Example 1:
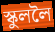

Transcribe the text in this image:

স্কুললৈ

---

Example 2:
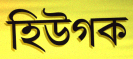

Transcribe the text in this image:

হিউগক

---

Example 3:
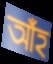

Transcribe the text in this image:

আঁহ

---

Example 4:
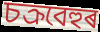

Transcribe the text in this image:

চক্ৰবেহুৰ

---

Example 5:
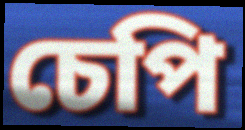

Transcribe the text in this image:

চেপি